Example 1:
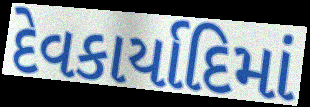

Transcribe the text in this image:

દેવકાર્યાદિમાં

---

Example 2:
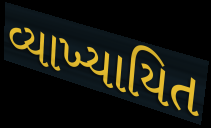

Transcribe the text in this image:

વ્યાખ્યાયિત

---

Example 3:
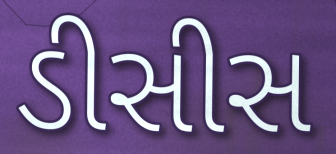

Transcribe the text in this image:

ડીસીસ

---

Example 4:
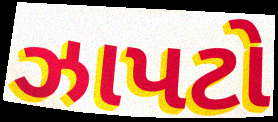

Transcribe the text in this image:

ઝાપટો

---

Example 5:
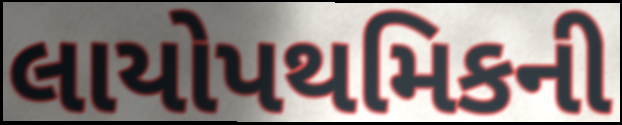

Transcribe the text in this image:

લાયોપથમિકની